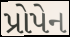
પ્રોપેન